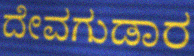
ದೇವಗುಡಾರ